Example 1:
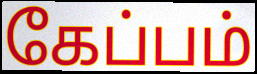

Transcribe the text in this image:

கேப்பம்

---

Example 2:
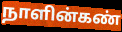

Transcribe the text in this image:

நாளின்கண்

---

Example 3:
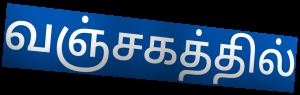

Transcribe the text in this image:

வஞ்சகத்தில்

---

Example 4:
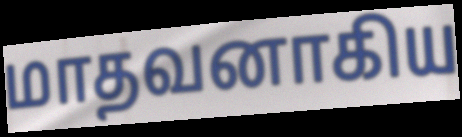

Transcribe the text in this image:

மாதவனாகிய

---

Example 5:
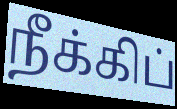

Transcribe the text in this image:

நீக்கிப்